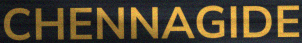
CHENNAGIDE